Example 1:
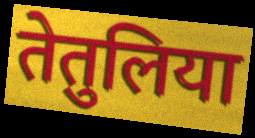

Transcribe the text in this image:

तेतुलिया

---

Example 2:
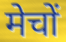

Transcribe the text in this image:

मेचों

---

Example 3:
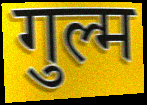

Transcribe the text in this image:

गुल्म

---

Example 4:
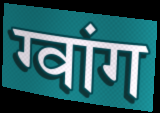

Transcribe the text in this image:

ग्वांग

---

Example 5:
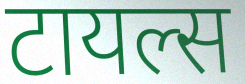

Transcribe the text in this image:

टायल्स